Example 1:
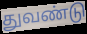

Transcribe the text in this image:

துவண்டு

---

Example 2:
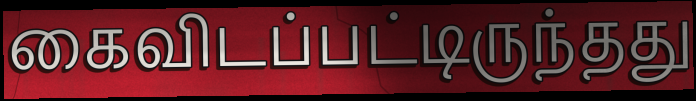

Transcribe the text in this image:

கைவிடப்பட்டிருந்தது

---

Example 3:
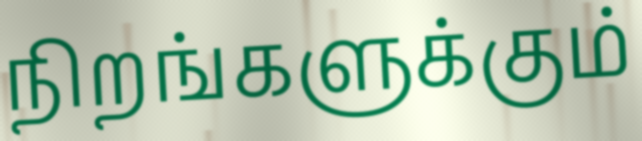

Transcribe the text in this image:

நிறங்களுக்கும்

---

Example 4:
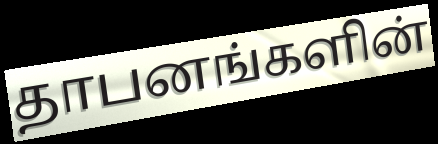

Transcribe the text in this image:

தாபனங்களின்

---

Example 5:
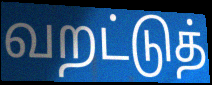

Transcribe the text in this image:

வறட்டுத்